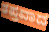
ತಪ್ತವಾದ